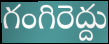
గంగిరెద్దు